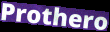
Prothero